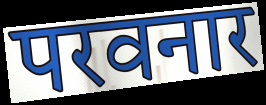
परवनार